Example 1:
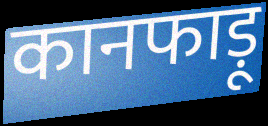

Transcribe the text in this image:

कानफाड़ू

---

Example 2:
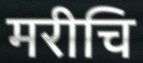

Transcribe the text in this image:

मरीचि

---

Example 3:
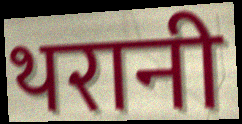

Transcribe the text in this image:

थरानी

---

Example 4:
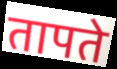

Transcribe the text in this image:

तापते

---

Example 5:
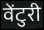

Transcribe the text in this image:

वेंटुरी